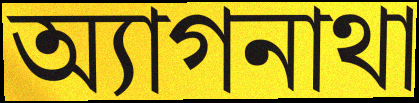
অ্যাগনাথা